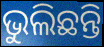
ଭୁଲିଛନ୍ତି